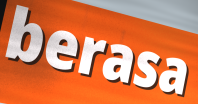
berasa